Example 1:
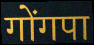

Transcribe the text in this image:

गोंगपा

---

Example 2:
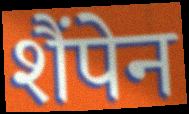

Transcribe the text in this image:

शैंपेन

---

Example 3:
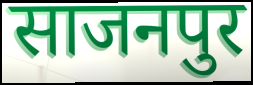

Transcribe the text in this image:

साजनपुर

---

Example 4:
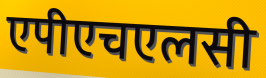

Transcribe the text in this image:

एपीएचएलसी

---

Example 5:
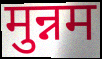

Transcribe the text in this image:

मुन्नम